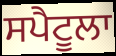
ਸਪੈਟੂਲਾ